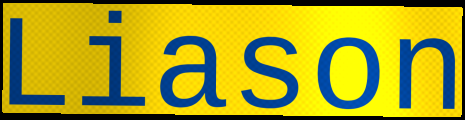
Liason